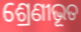
ଶ୍ରେଣୀଭୂତ